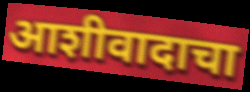
आशीवादाचा